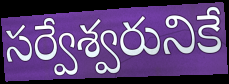
సర్వేశ్వరునికే